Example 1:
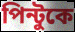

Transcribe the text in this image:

পিন্টুকে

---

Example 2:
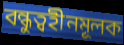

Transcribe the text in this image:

বন্ধুত্বহীনমূলক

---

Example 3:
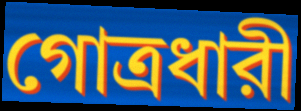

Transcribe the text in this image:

গোত্রধারী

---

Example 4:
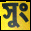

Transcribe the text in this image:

সুং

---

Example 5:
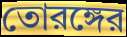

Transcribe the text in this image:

তোরঙ্গের